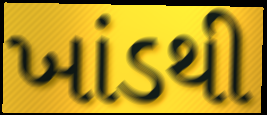
ખાંડથી